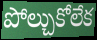
పోల్చుకోలేక